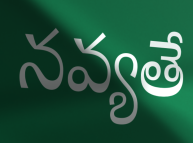
నవ్యతే